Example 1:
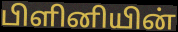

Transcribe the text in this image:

பிளினியின்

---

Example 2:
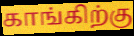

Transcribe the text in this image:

காங்கிற்கு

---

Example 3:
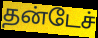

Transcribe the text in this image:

தன்டேச்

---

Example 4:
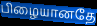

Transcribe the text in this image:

பிழையானதே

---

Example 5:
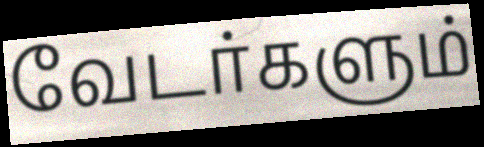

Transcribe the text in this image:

வேடர்களும்